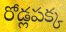
రోడ్లపక్క